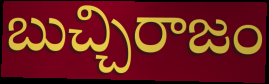
బుచ్చిరాజం